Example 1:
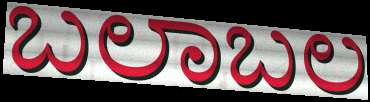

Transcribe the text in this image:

ಬಲಾಬಲ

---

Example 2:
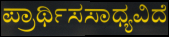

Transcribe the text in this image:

ಪ್ರಾರ್ಥಿಸಸಾಧ್ಯವಿದೆ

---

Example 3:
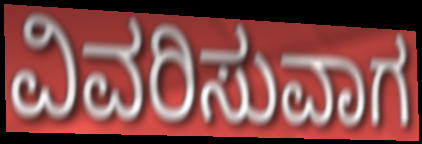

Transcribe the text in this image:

ವಿವರಿಸುವಾಗ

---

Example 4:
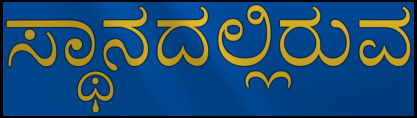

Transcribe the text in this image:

ಸ್ಥಾನದಲ್ಲಿರುವ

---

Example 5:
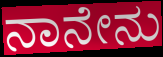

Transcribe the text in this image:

ನಾನೇನು